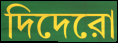
দিদেরো